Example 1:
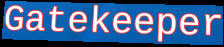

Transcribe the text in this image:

Gatekeeper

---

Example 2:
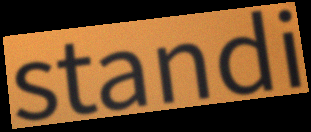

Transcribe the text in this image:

standi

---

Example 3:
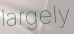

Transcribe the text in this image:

largely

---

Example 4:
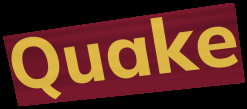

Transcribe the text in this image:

Quake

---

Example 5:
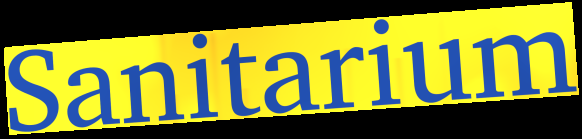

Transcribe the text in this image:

Sanitarium